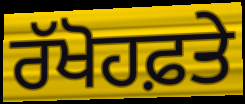
ਰੱਖੋਹਫ਼ਤੇ